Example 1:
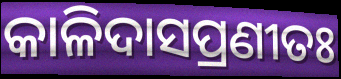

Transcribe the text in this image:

କାଳିଦାସପ୍ରଣୀତଃ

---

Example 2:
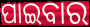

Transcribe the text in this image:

ପାଇବାର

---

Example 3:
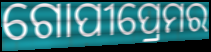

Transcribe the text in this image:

ଗୋପୀପ୍ରେମର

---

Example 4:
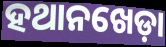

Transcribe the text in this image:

ହଥାନଖେଡ଼ା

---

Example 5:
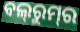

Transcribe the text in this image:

ବଲ୍‍ରୁମ୍‌ର